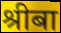
श्रीबा